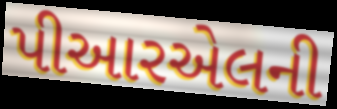
પીઆરએલની